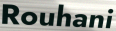
Rouhani